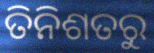
ତିନିଶତରୁ